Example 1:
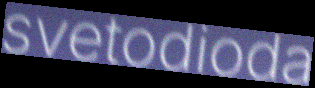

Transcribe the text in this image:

svetodioda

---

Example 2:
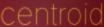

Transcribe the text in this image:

centroid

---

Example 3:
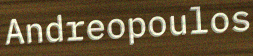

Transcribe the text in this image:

Andreopoulos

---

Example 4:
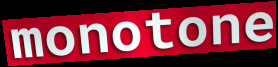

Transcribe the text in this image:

monotone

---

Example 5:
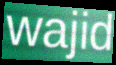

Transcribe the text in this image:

wajid